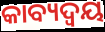
କାବ୍ୟଦ୍ୱୟ